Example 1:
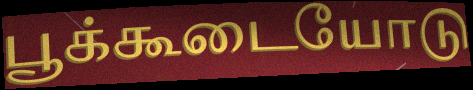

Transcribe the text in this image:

பூக்கூடையோடு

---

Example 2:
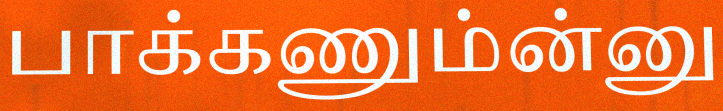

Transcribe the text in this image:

பாக்கணும்ன்னு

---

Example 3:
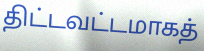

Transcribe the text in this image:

திட்டவட்டமாகத்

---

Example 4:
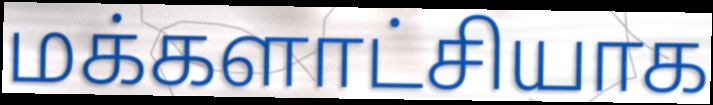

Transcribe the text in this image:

மக்களாட்சியாக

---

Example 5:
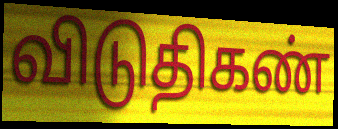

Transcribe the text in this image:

விடுதிகண்